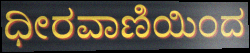
ಧೀರವಾಣಿಯಿಂದ